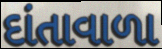
દાંતાવાળા